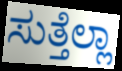
ಸುತ್ತೆಲ್ಲಾ